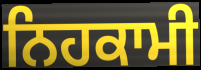
ਨਿਹਕਾਮੀ